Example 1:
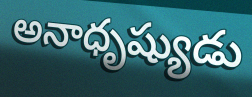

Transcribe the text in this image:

అనాధృష్యుడు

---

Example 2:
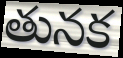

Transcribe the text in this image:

తునక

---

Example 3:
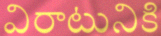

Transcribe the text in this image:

విరాటునికి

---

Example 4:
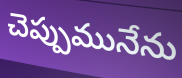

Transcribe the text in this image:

చెప్పుమునేను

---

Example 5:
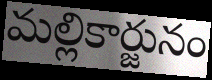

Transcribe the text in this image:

మల్లికార్జునం